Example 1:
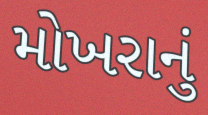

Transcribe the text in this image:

મોખરાનું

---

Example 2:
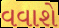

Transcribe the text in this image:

વવાશે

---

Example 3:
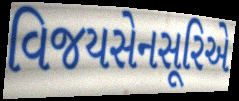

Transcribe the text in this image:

વિજયસેનસૂરિએ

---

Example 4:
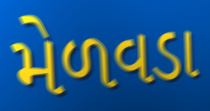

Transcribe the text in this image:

મેળવડા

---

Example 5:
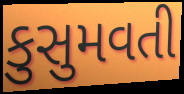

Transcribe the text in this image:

કુસુમવતી